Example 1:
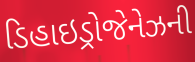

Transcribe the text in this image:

ડિહાઇડ્રોજેનેઝની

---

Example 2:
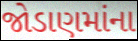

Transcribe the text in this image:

જોડાણમાંના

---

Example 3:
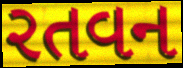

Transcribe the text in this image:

રતવન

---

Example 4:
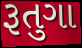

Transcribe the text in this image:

રૂતુગા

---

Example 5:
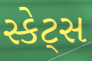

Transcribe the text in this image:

સ્કેટ્સ